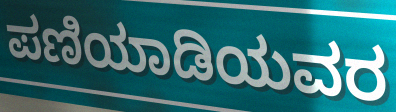
ಪಣಿಯಾಡಿಯವರ